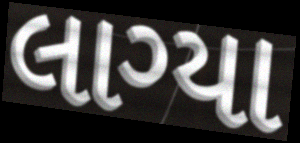
લાગ્યા